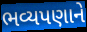
ભવ્યપણાને